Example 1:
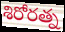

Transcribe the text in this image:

శిరోరత్న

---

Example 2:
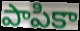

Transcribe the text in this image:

పాపికా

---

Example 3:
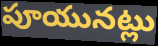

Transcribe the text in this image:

పూయునట్లు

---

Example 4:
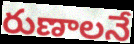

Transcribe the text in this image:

రుణాలనే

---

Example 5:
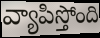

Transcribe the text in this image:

వ్యాపిస్తోంది